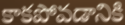
కాకపోవడానికి